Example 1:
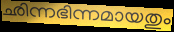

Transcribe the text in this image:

ഛിന്നഭിന്നമായതും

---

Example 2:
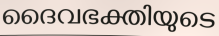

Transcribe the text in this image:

ദൈവഭക്തിയുടെ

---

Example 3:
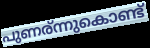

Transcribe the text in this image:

പുണര്ന്നുകൊണ്ട്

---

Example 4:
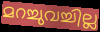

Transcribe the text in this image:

മറച്ചുവച്ചില്ല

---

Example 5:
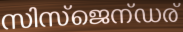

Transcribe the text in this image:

സിസ്ജെന്ഡര്